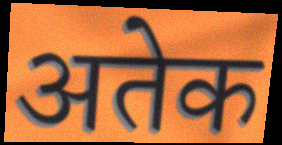
अतेक